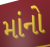
માંનો